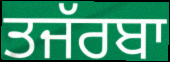
ਤਜੱਰਬਾ